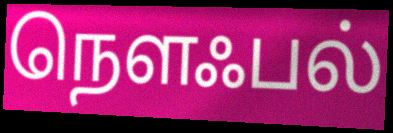
நௌஃபல்